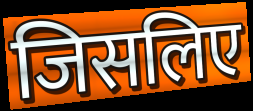
जिसलिए